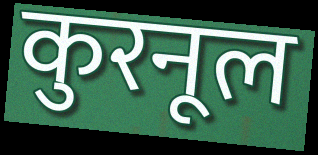
कुरनूल